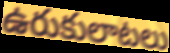
ఉరుకులాటలు